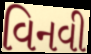
વિનવી